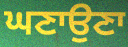
ਘਣਾਉਣਾ